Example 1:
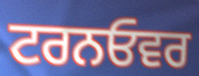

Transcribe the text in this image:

ਟਰਨਓਵਰ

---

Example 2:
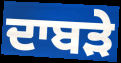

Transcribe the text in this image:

ਦਾਬੜੇ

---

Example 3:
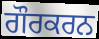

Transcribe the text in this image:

ਗੌਰਕਰਨ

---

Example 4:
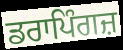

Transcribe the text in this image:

ਡਰਾਪਿੰਗਜ਼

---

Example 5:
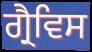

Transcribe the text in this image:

ਗ੍ਰੈਵਿਸ